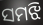
ସମଝି